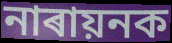
নাৰায়নক